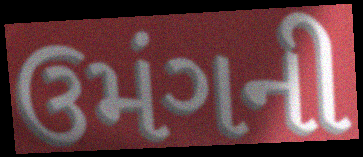
ઉમંગની